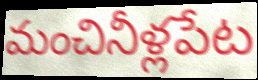
మంచినీళ్లపేట